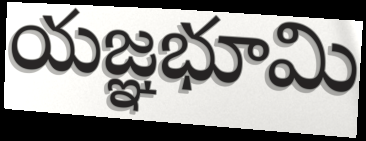
యజ్ఞభూమి